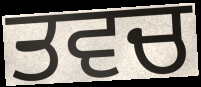
ਤਵਚ